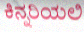
ಕಿನ್ನರಿಯಲಿ